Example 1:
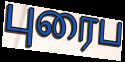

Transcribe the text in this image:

புரைப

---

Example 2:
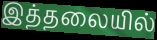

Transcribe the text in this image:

இத்தலையில்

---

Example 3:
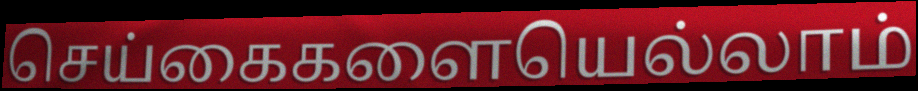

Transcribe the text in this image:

செய்கைகளையெல்லாம்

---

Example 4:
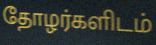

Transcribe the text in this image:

தோழர்களிடம்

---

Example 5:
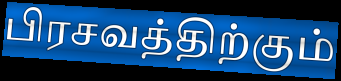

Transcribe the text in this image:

பிரசவத்திற்கும்